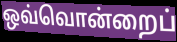
ஒவ்வொன்றைப்